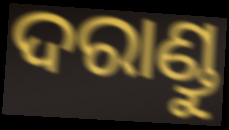
ଦରାଣ୍ଡୁ